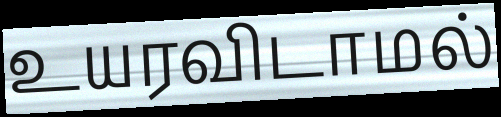
உயரவிடாமல்